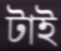
টাই